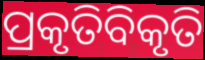
ପ୍ରକୃତିବିକୃତି